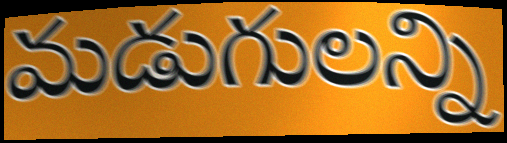
మడుగులన్ని